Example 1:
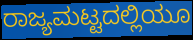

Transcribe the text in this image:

ರಾಜ್ಯಮಟ್ಟದಲ್ಲಿಯೂ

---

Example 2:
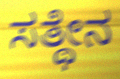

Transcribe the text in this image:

ಸತ್ಥೇನ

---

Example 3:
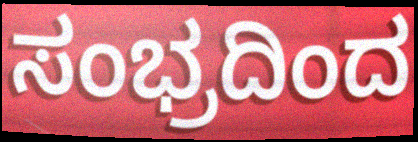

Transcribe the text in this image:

ಸಂಭ್ರದಿಂದ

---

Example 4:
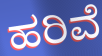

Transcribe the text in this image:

ಹರಿವೆ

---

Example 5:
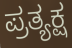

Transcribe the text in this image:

ಪ್ರತ್ಯಕ್ಷ